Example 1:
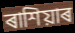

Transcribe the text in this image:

ৰাশিয়াৰ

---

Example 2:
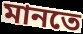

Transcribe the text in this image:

মানতে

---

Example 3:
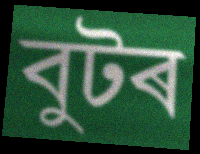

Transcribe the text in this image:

বুটৰ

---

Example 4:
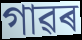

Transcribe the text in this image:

গাৱৰ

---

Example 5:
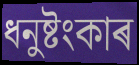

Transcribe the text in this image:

ধনুষ্টংকাৰ